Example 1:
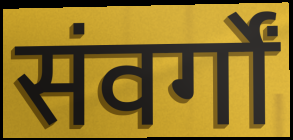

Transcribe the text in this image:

संवर्गों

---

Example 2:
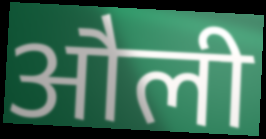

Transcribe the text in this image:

औली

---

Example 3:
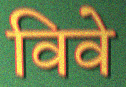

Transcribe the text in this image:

विवे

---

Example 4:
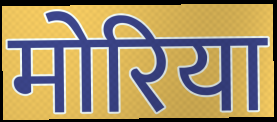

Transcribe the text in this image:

मोरिया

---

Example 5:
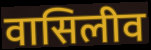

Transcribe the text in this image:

वासिलीव